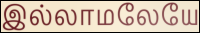
இல்லாமலேயே